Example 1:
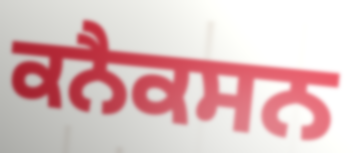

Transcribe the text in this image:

ਕਨੈਕਸਨ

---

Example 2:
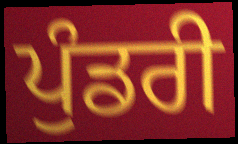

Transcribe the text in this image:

ਪੁੰਡਰੀ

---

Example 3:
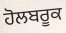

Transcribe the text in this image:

ਹੋਲਬਰੂਕ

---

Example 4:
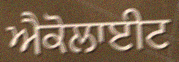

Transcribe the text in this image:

ਐਕੋਲਾਈਟ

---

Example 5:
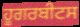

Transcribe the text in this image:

ਹੂਗਰਬੀਟਸ